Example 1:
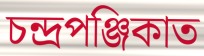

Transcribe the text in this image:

চন্দ্ৰপঞ্জিকাত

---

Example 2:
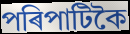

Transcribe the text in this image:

পৰিপাটিকৈ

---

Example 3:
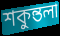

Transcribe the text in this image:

শকুন্তলা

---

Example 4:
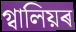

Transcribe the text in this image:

গ্বালিয়ৰ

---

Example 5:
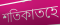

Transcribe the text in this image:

শতিকাতহে